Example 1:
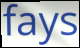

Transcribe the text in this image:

fays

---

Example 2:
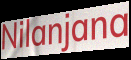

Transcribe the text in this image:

Nilanjana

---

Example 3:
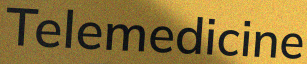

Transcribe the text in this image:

Telemedicine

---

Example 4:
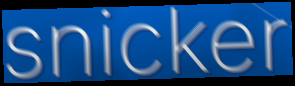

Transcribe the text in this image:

snicker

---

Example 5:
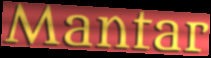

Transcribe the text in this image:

Mantar